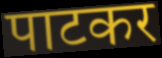
पाटकर